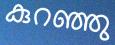
കുറഞ്ഞു